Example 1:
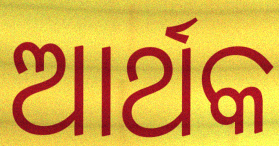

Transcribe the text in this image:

ଆର୍ଥକ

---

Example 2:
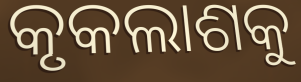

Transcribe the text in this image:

କୃକଲାଶକୁ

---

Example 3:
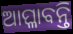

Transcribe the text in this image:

ଆପ୍ଳାବନ୍ତି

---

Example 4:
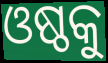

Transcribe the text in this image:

ଓଷ୍ଠକୁ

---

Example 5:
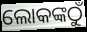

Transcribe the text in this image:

ଲୋକଙ୍କଠୁଁ